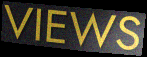
VIEWS